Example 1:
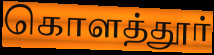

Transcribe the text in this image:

கொளத்தூர்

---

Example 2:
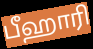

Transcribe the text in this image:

பீஹாரி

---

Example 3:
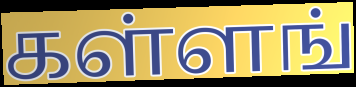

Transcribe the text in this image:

கள்ளங்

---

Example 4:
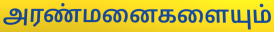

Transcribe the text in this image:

அரண்மனைகளையும்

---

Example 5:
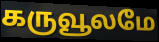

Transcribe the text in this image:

கருவூலமே